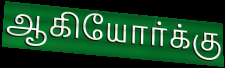
ஆகியோர்க்கு